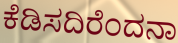
ಕೆಡಿಸದಿರೆಂದನಾ